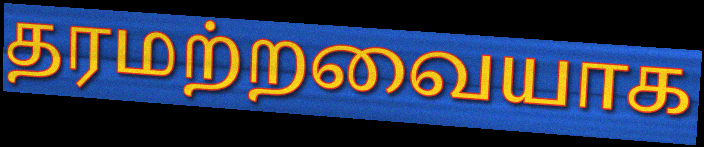
தரமற்றவையாக